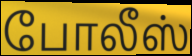
போலீஸ்